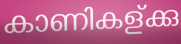
കാണികള്ക്കു